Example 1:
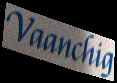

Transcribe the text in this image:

Vaanchig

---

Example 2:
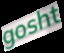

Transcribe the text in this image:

gosht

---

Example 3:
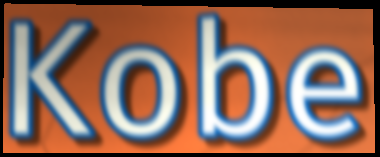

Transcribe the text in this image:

Kobe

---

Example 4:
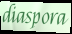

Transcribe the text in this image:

diaspora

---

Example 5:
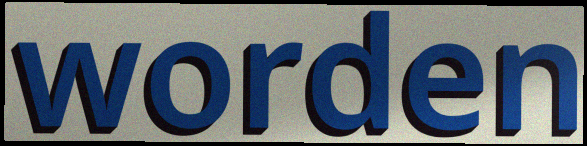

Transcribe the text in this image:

worden